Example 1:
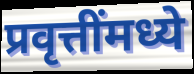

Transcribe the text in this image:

प्रवृत्तींमध्ये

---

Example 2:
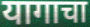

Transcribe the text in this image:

यागाचा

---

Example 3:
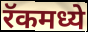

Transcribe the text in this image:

रॅकमध्ये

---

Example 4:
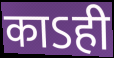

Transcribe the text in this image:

काऽही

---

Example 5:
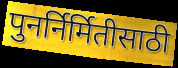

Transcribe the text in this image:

पुनर्निर्मितीसाठी